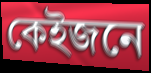
কেইজনে